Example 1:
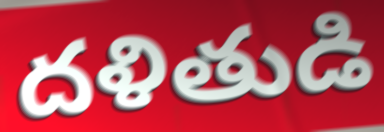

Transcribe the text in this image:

దళితుడి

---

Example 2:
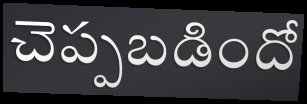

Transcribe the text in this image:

చెప్పబడిందో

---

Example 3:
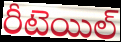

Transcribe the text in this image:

రీటెయిల్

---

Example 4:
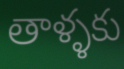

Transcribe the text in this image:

తాళ్ళకు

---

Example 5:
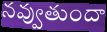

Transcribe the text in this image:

నవ్వుతుందా